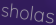
sholas